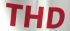
THD